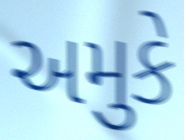
અમુકે